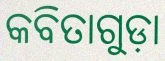
କବିତାଗୁଡ଼ା